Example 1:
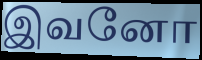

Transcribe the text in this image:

இவனோ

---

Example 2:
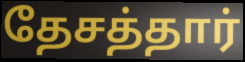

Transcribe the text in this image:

தேசத்தார்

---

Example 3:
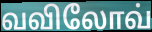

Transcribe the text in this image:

வவிலோவ்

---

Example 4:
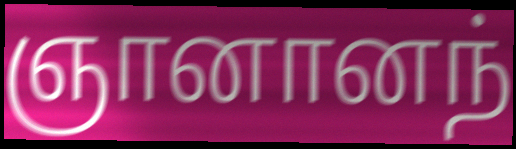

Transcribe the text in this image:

ஞானானந்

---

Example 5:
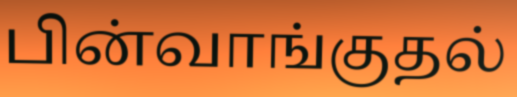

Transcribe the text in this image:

பின்வாங்குதல்